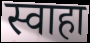
स्वाहा